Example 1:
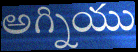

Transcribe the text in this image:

అగ్నియు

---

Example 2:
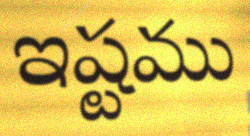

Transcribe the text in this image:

ఇష్టము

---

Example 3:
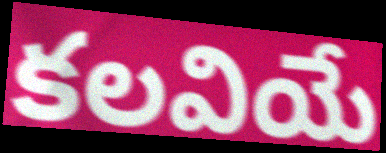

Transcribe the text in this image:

కలవియే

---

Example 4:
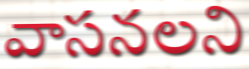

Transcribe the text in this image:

వాసనలని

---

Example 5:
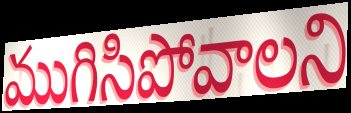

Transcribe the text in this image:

ముగిసిపోవాలని